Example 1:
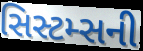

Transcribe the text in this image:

સિસ્ટમ્સની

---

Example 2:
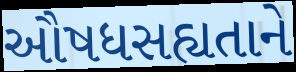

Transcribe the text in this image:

ઔષધસહ્યતાને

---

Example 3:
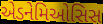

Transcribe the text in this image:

એડનેમિઓસિસ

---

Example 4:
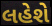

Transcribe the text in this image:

લહેશે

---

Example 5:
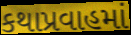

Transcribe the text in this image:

કથાપ્રવાહમાં